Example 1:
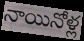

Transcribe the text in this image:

నాయినోళ్ల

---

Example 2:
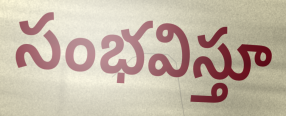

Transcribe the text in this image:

సంభవిస్తూ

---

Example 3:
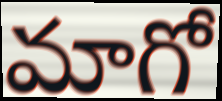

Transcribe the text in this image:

మాగో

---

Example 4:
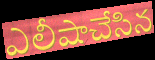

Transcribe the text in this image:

ఎలీషాచేసిన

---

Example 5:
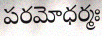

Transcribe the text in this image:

పరమోధర్మః